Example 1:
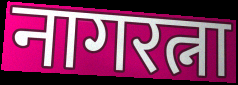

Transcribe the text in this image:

नागरत्ना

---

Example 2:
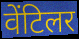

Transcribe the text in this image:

वेंटिलर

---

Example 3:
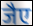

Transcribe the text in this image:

जैए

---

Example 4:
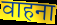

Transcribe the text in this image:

वाहना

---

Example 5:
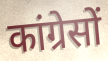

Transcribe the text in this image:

कांग्रेसों